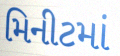
મિનીટમાં